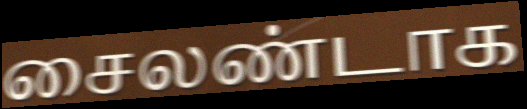
சைலண்டாக